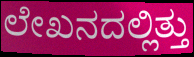
ಲೇಖನದಲ್ಲಿತ್ತು